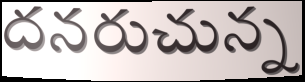
దనరుచున్న